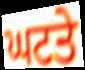
ਘਟਤੇ